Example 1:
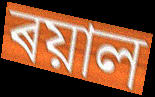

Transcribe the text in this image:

ৰয়াল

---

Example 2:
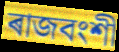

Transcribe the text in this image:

ৰাজবংশী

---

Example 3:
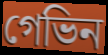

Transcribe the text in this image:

গেভিন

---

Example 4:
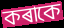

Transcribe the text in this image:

কৰাকে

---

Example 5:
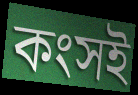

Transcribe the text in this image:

কংসই